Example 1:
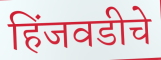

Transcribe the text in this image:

हिंजवडीचे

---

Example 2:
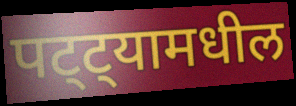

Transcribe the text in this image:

पट्ट्यामधील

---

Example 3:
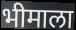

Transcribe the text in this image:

भीमाला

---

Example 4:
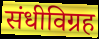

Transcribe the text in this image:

संधीविग्रह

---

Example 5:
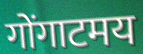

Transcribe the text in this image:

गोंगाटमय